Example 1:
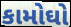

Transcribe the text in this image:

કામોઘો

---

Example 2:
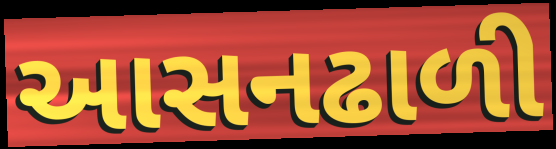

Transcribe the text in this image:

આસનઢાળી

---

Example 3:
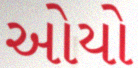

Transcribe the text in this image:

ઓયો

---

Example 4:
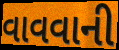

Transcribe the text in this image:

વાવવાની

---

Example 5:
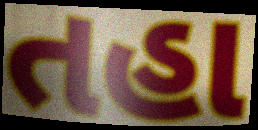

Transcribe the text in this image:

તહા